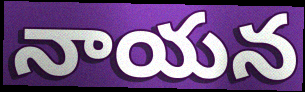
నాయన